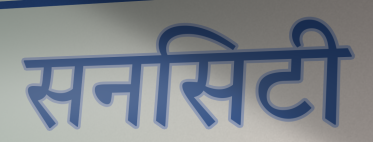
सनसिटी